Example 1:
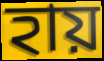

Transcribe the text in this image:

হায়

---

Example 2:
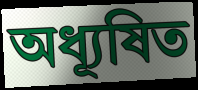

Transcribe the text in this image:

অধ্যূষিত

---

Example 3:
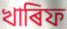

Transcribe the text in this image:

খাৰিফ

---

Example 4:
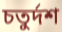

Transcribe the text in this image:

চতুৰ্দশ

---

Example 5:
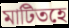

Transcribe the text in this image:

মাটিতহে